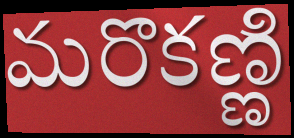
మరొకణ్ణి